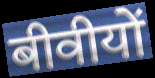
बीवीयों